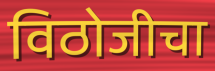
विठोजीचा